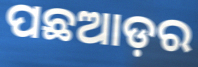
ପଛଆଡ଼ର